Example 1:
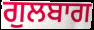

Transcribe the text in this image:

ਗੁਲਬਾਗ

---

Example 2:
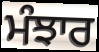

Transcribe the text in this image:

ਮੰਝਾਰ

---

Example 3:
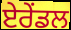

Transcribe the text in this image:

ਏਰੇਂਡਲ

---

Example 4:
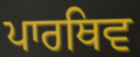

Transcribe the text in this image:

ਪਾਰਥਿਵ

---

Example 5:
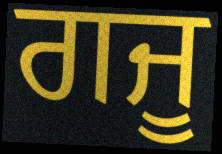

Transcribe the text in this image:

ਗਜੂ